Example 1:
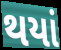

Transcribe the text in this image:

થયાં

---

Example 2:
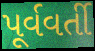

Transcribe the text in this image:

પૂર્વવર્તી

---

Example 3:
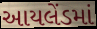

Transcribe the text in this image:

આયલેંડમાં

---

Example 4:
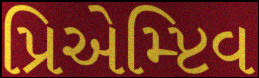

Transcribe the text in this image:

પ્રિએમ્પ્ટિવ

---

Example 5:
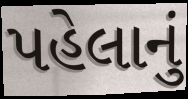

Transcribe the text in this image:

પહેલાનું